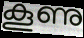
കൂണു